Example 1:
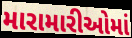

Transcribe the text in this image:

મારામારીઓમાં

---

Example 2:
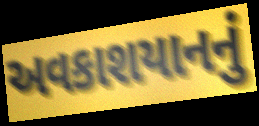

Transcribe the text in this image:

અવકાશયાનનું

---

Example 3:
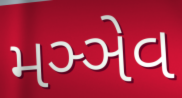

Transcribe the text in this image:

મઞ્ઞેવ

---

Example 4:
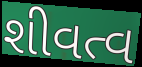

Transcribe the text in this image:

શીવત્વ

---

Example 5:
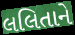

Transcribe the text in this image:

લલિતાને